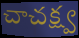
చాచక్ష్వ